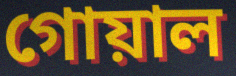
গোয়াল